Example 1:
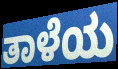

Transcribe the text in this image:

ತಾಳೆಯ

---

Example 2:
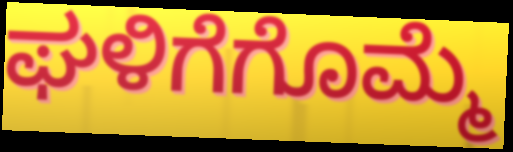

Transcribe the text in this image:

ಘಳಿಗೆಗೊಮ್ಮೆ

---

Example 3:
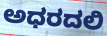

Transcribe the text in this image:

ಅಧರದಲಿ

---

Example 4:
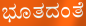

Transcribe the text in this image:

ಭೂತದಂತೆ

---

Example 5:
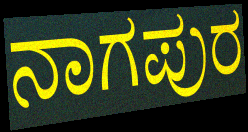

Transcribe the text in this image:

ನಾಗಪುರ